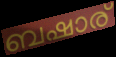
ബഷാര്